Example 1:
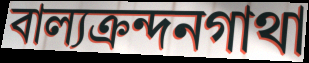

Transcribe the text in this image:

বাল্যক্রন্দনগাথা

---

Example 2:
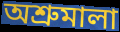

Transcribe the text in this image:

অশ্রুমালা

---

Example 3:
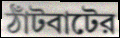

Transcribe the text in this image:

ঠাঁটবাটের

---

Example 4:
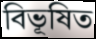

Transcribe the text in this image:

বিভূষিত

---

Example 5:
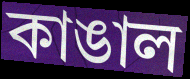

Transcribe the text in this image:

কাঙাল